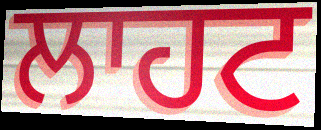
ਲਾਹਟ